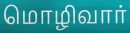
மொழிவார்